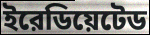
ইরেডিয়েটেড